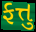
ફત્તુ